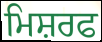
ਮਿਸ਼ਰਫ